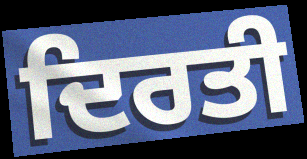
ਦਿਰਤੀ